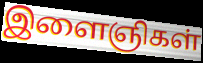
இளைஞிகள்